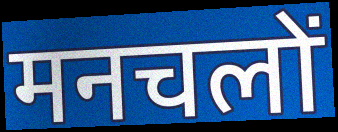
मनचलों